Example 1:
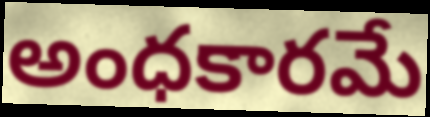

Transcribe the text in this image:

అంధకారమే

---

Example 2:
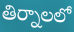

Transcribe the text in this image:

తిర్నాలలో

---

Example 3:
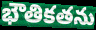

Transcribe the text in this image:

భౌతికతను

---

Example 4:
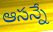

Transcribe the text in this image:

ఆసన్నే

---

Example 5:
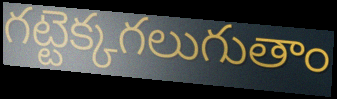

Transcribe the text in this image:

గట్టెక్కగలుగుతాం